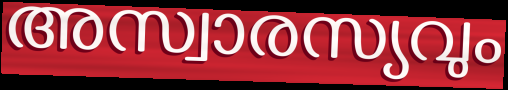
അസ്വാരസ്യവും